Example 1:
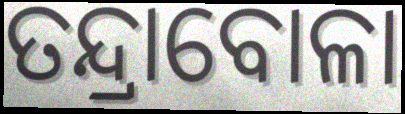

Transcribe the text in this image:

ତନ୍ଦ୍ରାବୋଳା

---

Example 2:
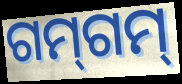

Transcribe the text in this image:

ଗମ୍‌ଗମ୍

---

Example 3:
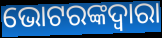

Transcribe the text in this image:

ଭୋଟରଙ୍କଦ୍ଵାରା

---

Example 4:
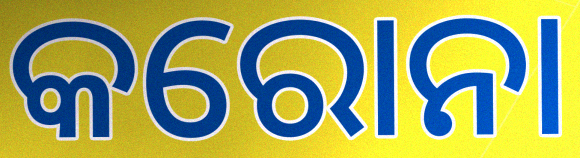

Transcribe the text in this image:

କରୋନା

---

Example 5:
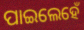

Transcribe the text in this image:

ପାଇଲେହେଁ